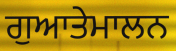
ਗੁਆਤੇਮਾਲਨ